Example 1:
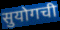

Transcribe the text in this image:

सुयोगची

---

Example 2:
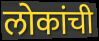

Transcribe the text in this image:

लोकांची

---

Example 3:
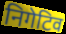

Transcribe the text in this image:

निगेटिव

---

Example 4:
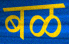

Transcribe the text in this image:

बळ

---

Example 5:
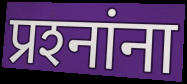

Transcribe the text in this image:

प्रश्‍नांना